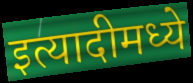
इत्यादीमध्ये